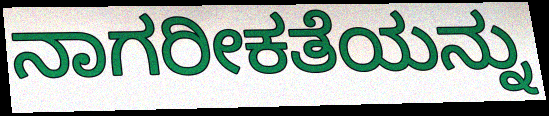
ನಾಗರೀಕತೆಯನ್ನು